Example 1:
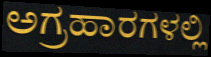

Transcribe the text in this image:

ಅಗ್ರಹಾರಗಳಲ್ಲಿ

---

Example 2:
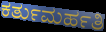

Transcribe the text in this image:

ಕರ್ತುಮರ್ಹತಿ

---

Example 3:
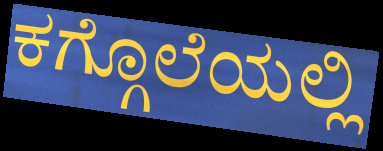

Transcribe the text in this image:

ಕಗ್ಗೊಲೆಯಲ್ಲಿ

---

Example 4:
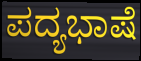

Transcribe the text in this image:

ಪದ್ಯಭಾಷೆ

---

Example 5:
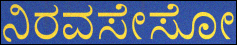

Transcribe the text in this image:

ನಿರವಸೇಸೋ